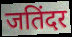
जतिंदर